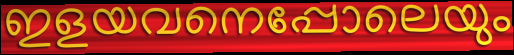
ഇളയവനെപ്പോലെയും